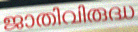
ജാതിവിരുദ്ധ